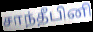
சாந்தீபினி